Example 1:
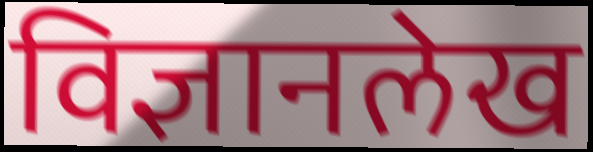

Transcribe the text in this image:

विज्ञानलेख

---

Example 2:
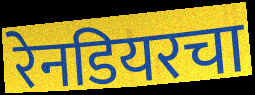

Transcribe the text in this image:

रेनडियरचा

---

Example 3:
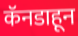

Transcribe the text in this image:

कॅनडाहून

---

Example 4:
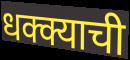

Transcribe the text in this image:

धक्क्याची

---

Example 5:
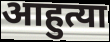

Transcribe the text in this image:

आहुत्या